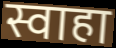
स्‍वाहा